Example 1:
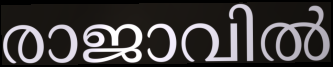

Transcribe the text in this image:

രാജാവിൽ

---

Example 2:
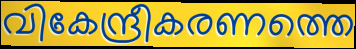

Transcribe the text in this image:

വികേന്ദ്രീകരണത്തെ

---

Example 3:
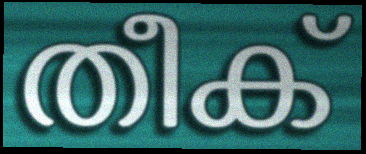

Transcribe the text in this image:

തീക്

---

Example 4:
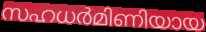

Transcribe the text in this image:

സഹധർമിണിയായ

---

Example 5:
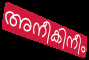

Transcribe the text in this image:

അനീകിനീം